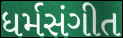
ધર્મસંગીત